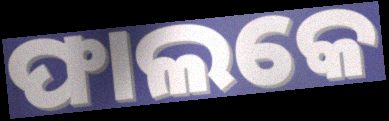
ଫାଲକେ